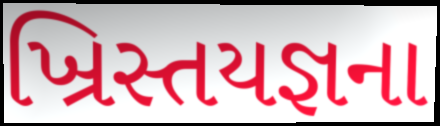
ખ્રિસ્તયજ્ઞના